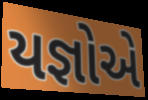
યજ્ઞોએ